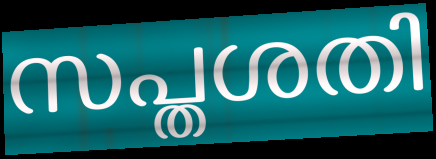
സപ്തശതി